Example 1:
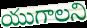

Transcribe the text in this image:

యుగాలని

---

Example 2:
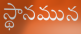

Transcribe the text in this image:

స్థానమున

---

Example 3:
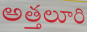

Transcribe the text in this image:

అత్తలూరి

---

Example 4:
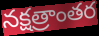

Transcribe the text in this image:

నక్షత్రాంతర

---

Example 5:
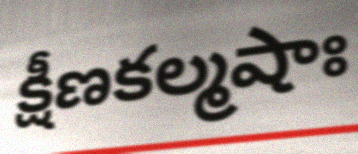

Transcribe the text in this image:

క్షీణకల్మషాః